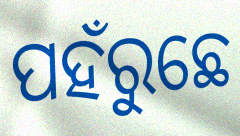
ପହଁରୁଛେ